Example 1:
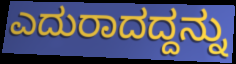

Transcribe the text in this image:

ಎದುರಾದದ್ದನ್ನು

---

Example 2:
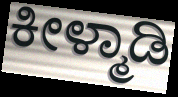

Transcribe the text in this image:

ಕೀಳ್ಮಾಡಿ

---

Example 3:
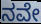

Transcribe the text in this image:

ನವೇ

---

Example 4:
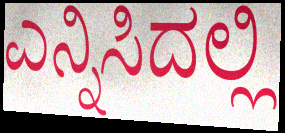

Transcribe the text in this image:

ಎನ್ನಿಸಿದಲ್ಲಿ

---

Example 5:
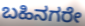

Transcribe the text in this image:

ಬಹಿನಗರೇ